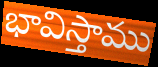
భావిస్తాము